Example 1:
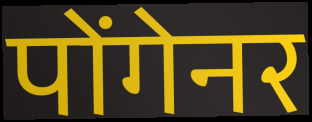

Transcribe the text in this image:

पोंगेनर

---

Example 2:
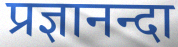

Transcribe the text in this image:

प्रज्ञानन्दा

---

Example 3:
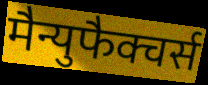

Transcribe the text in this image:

मैन्युफैक्चर्स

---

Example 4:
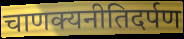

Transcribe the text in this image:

चाणक्यनीतिदर्पण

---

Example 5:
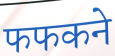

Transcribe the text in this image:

फफकने